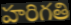
హరిగతి